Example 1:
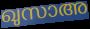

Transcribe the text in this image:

ഖുസാഅ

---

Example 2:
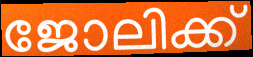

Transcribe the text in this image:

ജോലിക്ക്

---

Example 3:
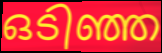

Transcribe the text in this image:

ഒടിഞ്ഞ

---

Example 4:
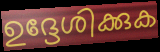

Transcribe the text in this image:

ഉദ്ദേശിക്കുക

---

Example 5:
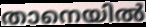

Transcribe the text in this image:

താനെയിൽ